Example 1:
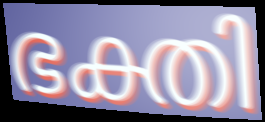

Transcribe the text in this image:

ഭക്തി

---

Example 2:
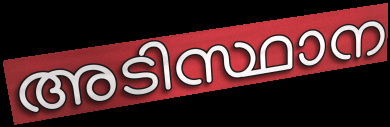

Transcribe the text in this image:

അടിസ്ഥാന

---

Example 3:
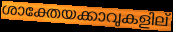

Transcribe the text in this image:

ശാക്തേയക്കാവുകളില്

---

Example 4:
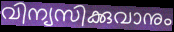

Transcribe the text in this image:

വിന്യസിക്കുവാനും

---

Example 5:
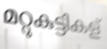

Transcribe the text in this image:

മറ്റുകുട്ടികള്